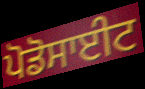
ਪੋਡੋਸਾਈਟ